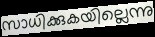
സാധിക്കുകയില്ലെന്നു